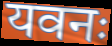
यवनः